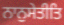
ਨਾਨੁਸੇਤੀਤਿ